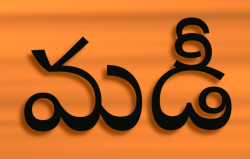
మడీ